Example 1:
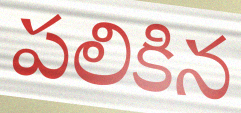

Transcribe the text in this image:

పలికిన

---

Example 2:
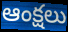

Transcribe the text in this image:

ఆంక్షలు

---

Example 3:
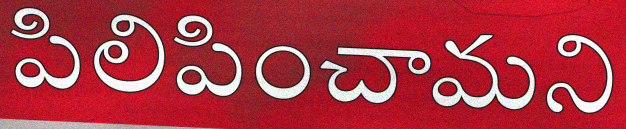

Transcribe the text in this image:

పిలిపించామని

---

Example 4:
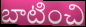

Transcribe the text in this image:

బాటించి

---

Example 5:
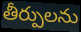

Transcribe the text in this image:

తీర్పులను